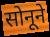
सोनूने